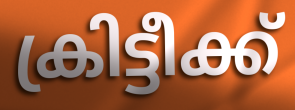
ക്രിട്ടീക്ക്